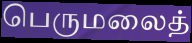
பெருமலைத்